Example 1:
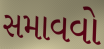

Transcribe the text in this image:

સમાવવો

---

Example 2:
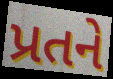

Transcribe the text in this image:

પ્રતને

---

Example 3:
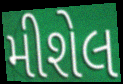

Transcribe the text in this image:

મીશેલ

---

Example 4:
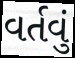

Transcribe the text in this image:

વર્તવું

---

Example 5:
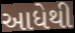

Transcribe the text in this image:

આધેથી